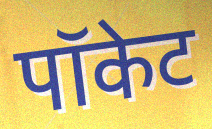
पॉकेट